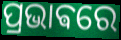
ପ୍ରଭାଵରେ